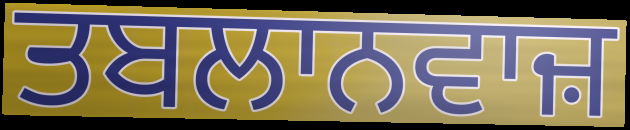
ਤਬਲਾਨਵਾਜ਼